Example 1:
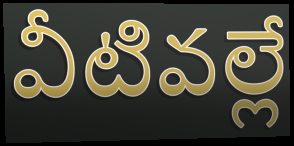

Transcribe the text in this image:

వీటివల్లే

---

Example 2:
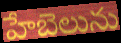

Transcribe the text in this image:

హేబెలును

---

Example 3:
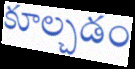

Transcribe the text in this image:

కూల్చడం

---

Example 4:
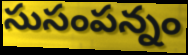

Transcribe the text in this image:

సుసంపన్నం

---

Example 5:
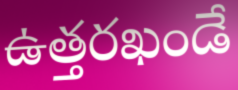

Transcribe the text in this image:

ఉత్తరఖండే